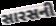
સારસની